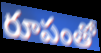
రూపంతో